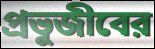
প্রভুজীবের